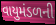
વાયુમંડળની